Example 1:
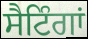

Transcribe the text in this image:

ਸੈਟਿੰਗਾਂ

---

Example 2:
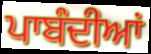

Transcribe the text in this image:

ਪਾਬੰਦੀਆਂ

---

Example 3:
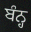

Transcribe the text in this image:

ਬੰਨ੍ਹ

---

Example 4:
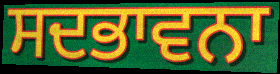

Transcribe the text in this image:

ਸਦਭਾਵਨਾ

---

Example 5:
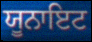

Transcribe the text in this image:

ਯੂਨਾਇਟ